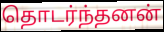
தொடர்ந்தனன்